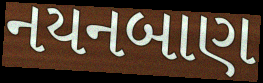
નયનબાણ